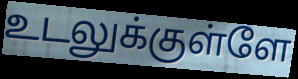
உடலுக்குள்ளே